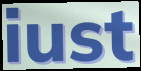
iust